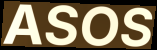
ASOS